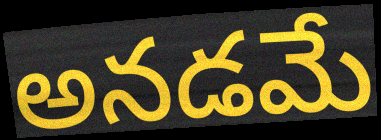
అనడమే